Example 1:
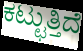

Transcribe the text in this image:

ಕಟ್ಟುತ್ತಿದೆ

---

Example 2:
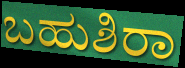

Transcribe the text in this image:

ಬಹುಶಿರಾ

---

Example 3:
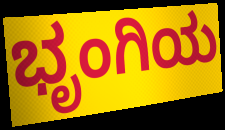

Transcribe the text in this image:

ಭೃಂಗಿಯ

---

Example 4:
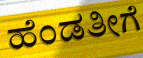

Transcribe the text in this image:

ಹೆಂಡತೀಗೆ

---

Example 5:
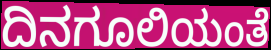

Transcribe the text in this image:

ದಿನಗೂಲಿಯಂತೆ